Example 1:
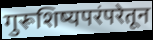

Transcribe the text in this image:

गुरूशिष्यपरंपरेतून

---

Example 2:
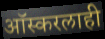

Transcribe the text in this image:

ऑस्करलाही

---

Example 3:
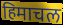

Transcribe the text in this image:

हिमाचल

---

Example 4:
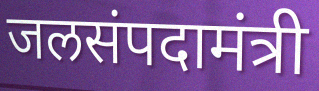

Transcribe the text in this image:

जलसंपदामंत्री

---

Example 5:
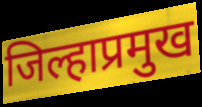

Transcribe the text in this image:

जिल्हाप्रमुख